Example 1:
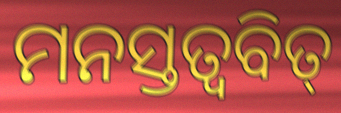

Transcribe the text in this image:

ମନସ୍ତତ୍ଵବିତ୍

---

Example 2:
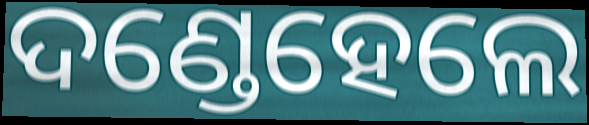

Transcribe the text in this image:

ଦଣ୍ଡେହେଲେ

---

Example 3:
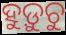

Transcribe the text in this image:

ହୁଡ଼ୁଚୁ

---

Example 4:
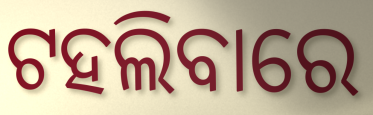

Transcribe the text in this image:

ଟହଲିବାରେ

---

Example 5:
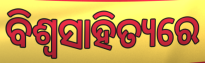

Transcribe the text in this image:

ବିଶ୍ବସାହିତ୍ୟରେ